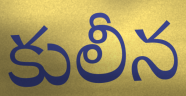
కులీన